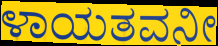
ಳಾಯತವನೀ